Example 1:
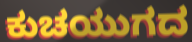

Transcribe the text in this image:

ಕುಚಯುಗದ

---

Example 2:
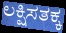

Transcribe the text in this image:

ಲಕ್ಷಿಸತಕ್ಕ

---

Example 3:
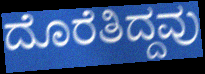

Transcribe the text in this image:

ದೊರೆತಿದ್ದವು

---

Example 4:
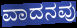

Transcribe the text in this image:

ವಾದನವು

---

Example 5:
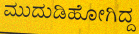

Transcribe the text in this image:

ಮುದುಡಿಹೋಗಿದ್ದ